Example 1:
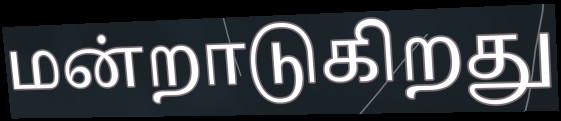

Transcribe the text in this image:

மன்றாடுகிறது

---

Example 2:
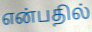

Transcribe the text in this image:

என்பதில்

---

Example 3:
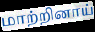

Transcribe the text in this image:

மாற்றினாய்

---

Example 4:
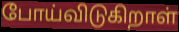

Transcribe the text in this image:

போய்விடுகிறாள்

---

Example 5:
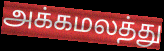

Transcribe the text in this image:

அக்கமலத்து